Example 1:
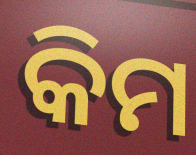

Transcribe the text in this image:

କିମ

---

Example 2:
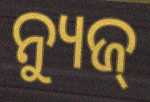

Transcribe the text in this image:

ନ୍ୟୁଜ୍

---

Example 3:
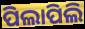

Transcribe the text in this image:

ପିଲାପିଲି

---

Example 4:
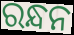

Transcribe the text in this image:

ରନ୍ଧନ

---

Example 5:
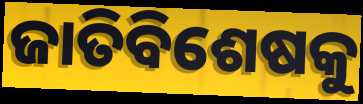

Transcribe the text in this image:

ଜାତିବିଶେଷକୁ